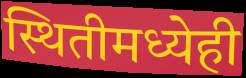
स्थितीमध्येही